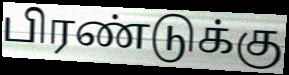
பிரண்டுக்கு